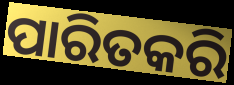
ପାରିତକରି